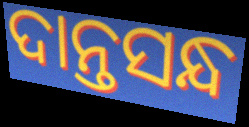
ଦାନ୍ତସନ୍ଧ